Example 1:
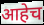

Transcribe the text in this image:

आहेच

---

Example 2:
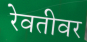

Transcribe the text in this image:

रेवतीवर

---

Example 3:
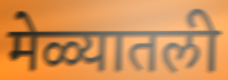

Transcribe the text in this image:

मेळ्यातली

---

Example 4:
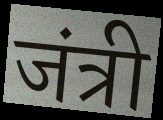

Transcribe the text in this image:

जंत्री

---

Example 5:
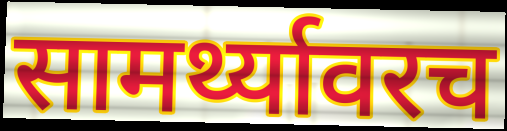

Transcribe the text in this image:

सामर्थ्यावरच